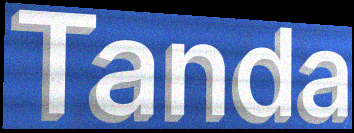
Tanda